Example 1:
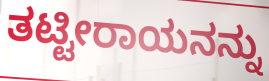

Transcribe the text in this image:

ತಟ್ಟೀರಾಯನನ್ನು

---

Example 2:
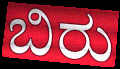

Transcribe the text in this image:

ಬಿರು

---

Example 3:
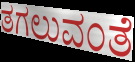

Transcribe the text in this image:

ತಗಲುವಂತೆ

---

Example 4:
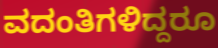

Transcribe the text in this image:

ವದಂತಿಗಳಿದ್ದರೂ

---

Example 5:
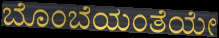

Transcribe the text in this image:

ಬೊಂಬೆಯಂತೆಯೇ